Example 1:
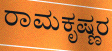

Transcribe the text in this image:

ರಾಮಕೃಷ್ಣರ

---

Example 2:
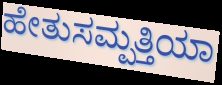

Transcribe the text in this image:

ಹೇತುಸಮ್ಪತ್ತಿಯಾ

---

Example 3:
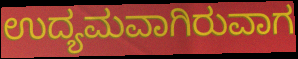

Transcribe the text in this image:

ಉದ್ಯಮವಾಗಿರುವಾಗ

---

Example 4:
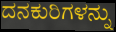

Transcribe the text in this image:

ದನಕುರಿಗಳನ್ನು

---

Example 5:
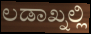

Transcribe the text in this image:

ಲಡಾಖ್ನಲ್ಲಿ